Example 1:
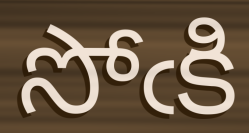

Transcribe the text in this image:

సోఁకి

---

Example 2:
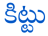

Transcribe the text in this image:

కిట్టు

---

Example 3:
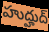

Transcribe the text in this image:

హుద్హుద్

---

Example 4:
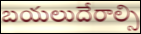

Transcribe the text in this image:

బయలుదేరాల్సి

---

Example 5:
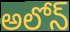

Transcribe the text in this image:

అలోన్